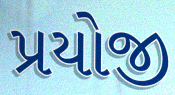
પ્રયોજી